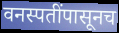
वनस्पतींपासूनच